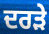
ਦਰੜੇ